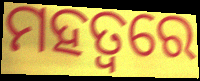
ମହତ୍ୱରେ